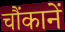
चौंकानें